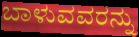
ಬಾಳುವವರನ್ನು